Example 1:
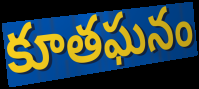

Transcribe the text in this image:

కూతఘనం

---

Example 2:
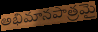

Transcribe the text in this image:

అభిమానపాత్రమై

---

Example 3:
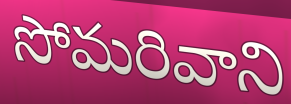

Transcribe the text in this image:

సోమరివాని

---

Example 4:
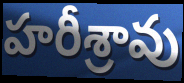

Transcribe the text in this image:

హరీశ్రావు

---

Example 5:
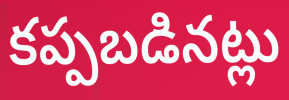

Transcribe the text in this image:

కప్పబడినట్లు